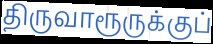
திருவாரூருக்குப்